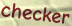
checker